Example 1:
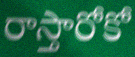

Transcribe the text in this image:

రాస్తారోకో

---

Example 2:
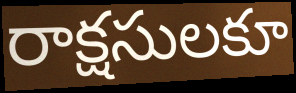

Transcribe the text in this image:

రాక్షసులకూ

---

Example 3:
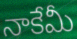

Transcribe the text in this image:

నాకేమీ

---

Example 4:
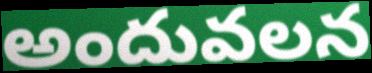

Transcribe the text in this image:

అందువలన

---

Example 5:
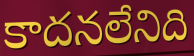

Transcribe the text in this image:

కాదనలేనిది